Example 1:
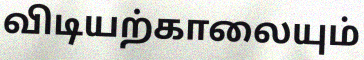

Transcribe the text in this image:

விடியற்காலையும்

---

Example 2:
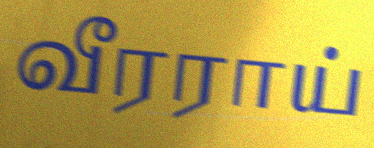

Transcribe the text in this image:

வீரராய்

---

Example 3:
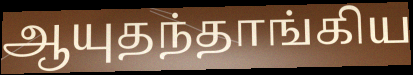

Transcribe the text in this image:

ஆயுதந்தாங்கிய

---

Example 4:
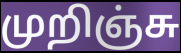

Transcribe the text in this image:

முறிஞ்சு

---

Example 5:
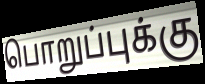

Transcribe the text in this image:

பொறுப்புக்கு